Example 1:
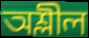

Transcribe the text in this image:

অশ্লীল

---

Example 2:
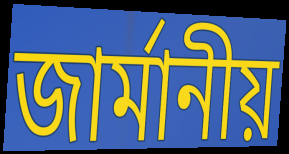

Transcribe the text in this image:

জার্মানীয়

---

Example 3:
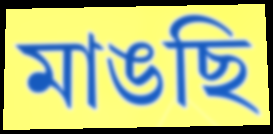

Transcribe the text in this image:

মাঙছি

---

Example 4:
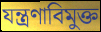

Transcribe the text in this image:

যন্ত্রণাবিমুক্ত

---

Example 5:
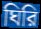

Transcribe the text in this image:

ঘিরি